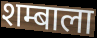
शम्बाला